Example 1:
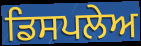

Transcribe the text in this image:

ਡਿਸਪਲੇਅ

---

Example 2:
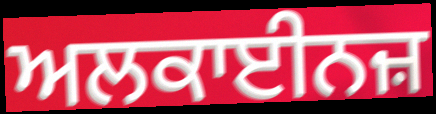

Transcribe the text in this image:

ਅਲਕਾਈਨਜ਼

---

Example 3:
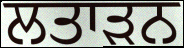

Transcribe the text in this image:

ਲਤਾੜਨ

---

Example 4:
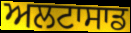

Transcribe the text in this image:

ਅਲਟਾਸਾਡ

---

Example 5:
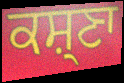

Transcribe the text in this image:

ਕਸ਼੍ਣਾ